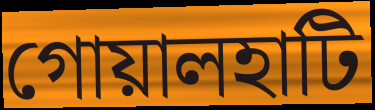
গোয়ালহাটি